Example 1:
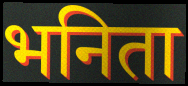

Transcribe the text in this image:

भनिता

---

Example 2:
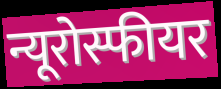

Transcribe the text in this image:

न्यूरोस्फीयर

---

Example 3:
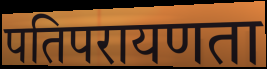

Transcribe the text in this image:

पतिपरायणता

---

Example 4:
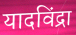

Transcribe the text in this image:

यादविंद्रा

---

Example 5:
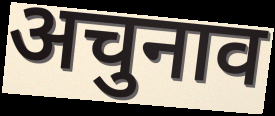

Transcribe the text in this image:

अचुनाव